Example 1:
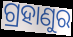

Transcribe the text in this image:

ଗ୍ରହାଣୁର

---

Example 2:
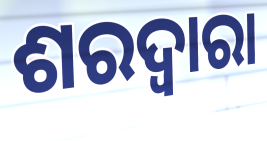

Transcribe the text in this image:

ଶରଦ୍ୱାରା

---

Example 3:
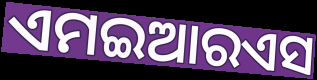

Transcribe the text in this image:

ଏମଇଆରଏସ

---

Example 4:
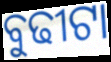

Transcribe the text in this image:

ବୁଢୀଟା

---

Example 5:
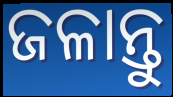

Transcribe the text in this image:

ଜଳାନ୍ତୁ